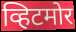
व्हिटमोर